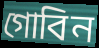
গোবিন